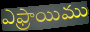
ఎఫ్రాయిము